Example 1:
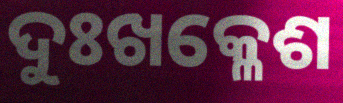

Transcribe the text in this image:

ଦୁଃଖକ୍ଳେଶ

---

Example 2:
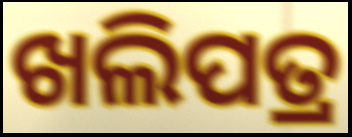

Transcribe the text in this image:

ଖଲିପତ୍ର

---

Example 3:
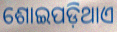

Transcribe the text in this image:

ଶୋଇପଡ଼ିଥାଏ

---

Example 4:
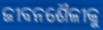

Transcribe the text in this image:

ଜୀବନଶୈଳୀକୁ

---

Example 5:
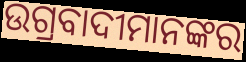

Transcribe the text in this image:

ଉଗ୍ରବାଦୀମାନଙ୍କର